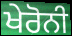
ਖੇਰੋਨੀ